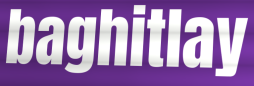
baghitlay